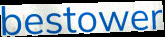
bestower